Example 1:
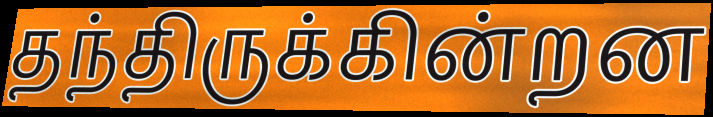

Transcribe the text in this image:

தந்திருக்கின்றன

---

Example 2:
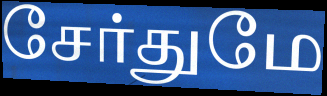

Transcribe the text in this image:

சேர்துமே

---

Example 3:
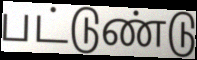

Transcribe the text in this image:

பட்டுண்டு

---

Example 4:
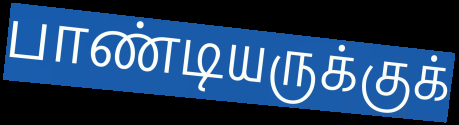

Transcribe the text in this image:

பாண்டியருக்குக்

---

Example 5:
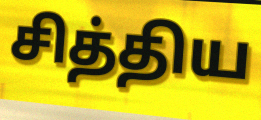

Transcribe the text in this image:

சித்திய